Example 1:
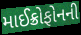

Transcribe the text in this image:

માઈક્રોફોનની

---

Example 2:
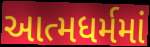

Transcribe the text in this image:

આત્મધર્મમાં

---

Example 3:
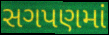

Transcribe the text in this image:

સગપણમાં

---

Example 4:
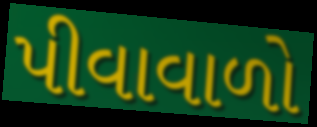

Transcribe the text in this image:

પીવાવાળો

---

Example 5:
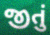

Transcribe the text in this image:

જીતું